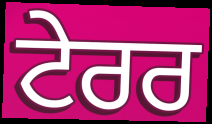
ਟੇਰਰ